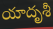
యాదృశీ